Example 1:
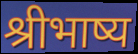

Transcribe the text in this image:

श्रीभाष्य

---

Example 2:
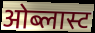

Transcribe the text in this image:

ओब्लास्ट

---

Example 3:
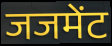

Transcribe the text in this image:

जजमेंट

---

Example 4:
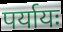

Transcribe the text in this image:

पर्यायः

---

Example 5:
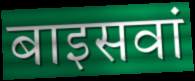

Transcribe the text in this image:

बाइसवां